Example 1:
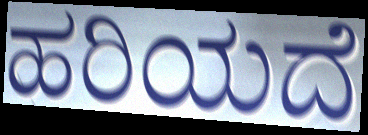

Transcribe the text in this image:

ಹರಿಯದೆ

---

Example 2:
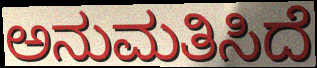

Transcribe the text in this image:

ಅನುಮತಿಸಿದೆ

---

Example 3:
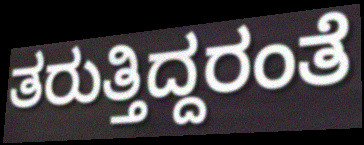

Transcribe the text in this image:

ತರುತ್ತಿದ್ದರಂತೆ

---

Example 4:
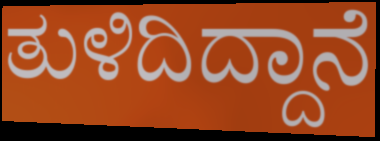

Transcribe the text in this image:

ತುಳಿದಿದ್ದಾನೆ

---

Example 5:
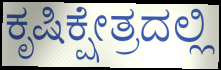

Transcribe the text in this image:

ಕೃಷಿಕ್ಷೇತ್ರದಲ್ಲಿ